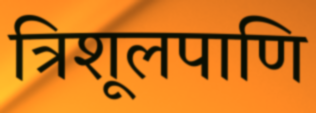
त्रिशूलपाणि